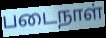
படைநாள்